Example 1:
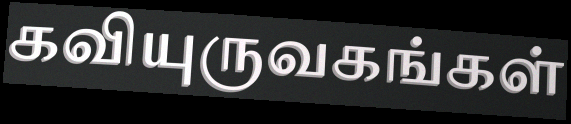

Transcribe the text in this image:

கவியுருவகங்கள்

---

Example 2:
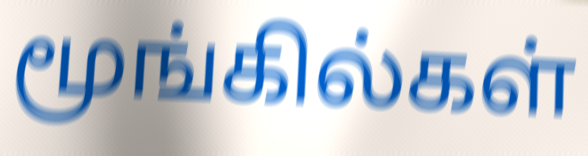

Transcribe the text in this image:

மூங்கில்கள்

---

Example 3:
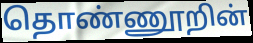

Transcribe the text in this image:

தொண்ணூறின்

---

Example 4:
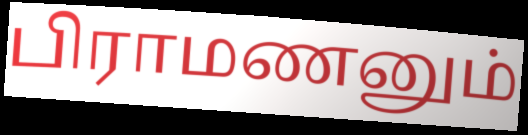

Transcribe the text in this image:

பிராமணனும்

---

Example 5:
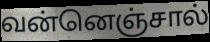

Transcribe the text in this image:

வன்னெஞ்சால்